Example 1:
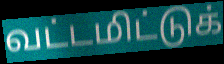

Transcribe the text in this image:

வட்டமிட்டுக்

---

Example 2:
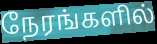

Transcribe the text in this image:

நேரங்களில்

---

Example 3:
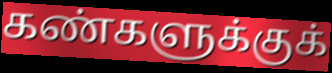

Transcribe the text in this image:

கண்களுக்குக்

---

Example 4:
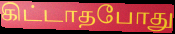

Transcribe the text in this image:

கிட்டாதபோது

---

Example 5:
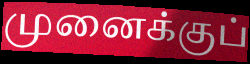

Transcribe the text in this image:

முனைக்குப்